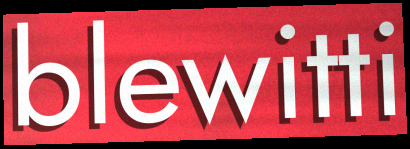
blewitti